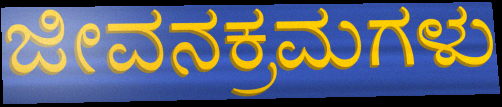
ಜೀವನಕ್ರಮಗಳು